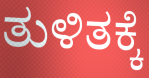
ತುಳಿತಕ್ಕೆ